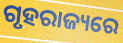
ଗୃହରାଜ୍ୟରେ